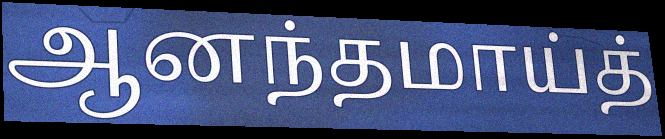
ஆனந்தமாய்த்